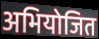
अभियोजित